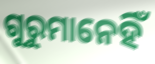
ଗୁରୁମାନେହିଁ